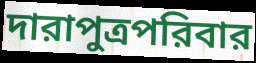
দারাপুত্রপরিবার